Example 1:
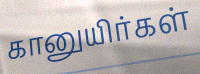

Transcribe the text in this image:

கானுயிர்கள்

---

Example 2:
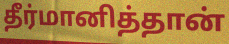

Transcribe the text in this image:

தீர்மானித்தான்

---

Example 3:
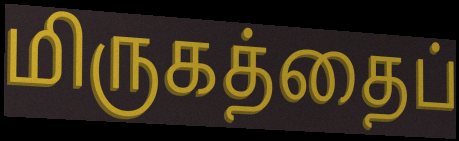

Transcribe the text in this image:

மிருகத்தைப்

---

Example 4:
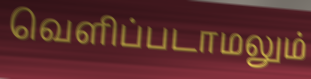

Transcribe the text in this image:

வெளிப்படாமலும்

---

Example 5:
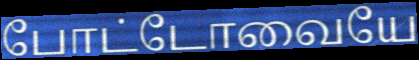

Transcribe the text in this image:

போட்டோவையே